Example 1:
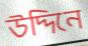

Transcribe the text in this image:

উদ্দিনে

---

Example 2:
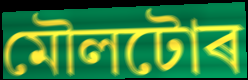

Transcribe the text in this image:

মৌলটোৰ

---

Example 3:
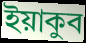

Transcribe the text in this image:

ইয়াকুব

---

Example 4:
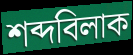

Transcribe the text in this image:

শব্দবিলাক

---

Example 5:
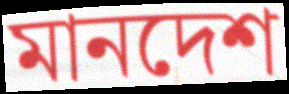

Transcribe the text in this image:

মানদেশ